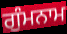
ਗੁੰਮਨਾਮ